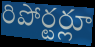
రిపోర్టర్లూ